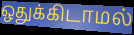
ஒதுக்கிடாமல்